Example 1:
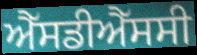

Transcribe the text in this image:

ਐੱਸਡੀਐੱਸਸੀ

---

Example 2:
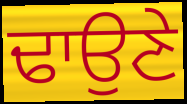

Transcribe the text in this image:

ਢਾਉਣੇ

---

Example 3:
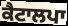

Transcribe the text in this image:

ਕੈਟਾਲਪਾ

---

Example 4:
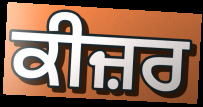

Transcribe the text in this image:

ਕੀਜ਼ਰ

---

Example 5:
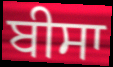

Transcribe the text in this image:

ਬੀਸਾ